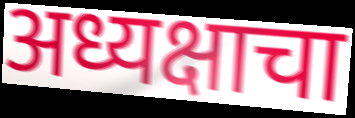
अध्यक्षाचा